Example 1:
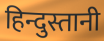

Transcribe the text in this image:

हिन्दुस्तानी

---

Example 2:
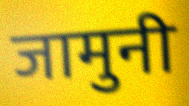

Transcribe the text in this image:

जामुनी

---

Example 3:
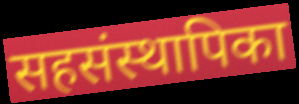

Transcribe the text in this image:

सहसंस्थापिका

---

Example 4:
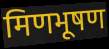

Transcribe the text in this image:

मिणभूषण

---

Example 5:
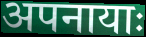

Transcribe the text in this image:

अपनायाः